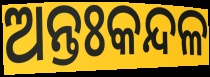
ଅନ୍ତଃକନ୍ଦଳ